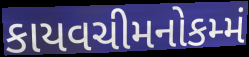
કાયવચીમનોકમ્મં